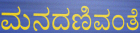
ಮನದಣಿವಂತೆ